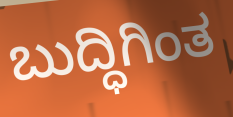
ಬುದ್ಧಿಗಿಂತ